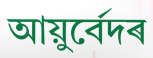
আয়ুৰ্বেদৰ